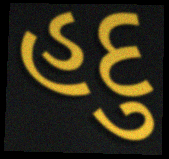
હદુ